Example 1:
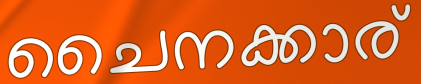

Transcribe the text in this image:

ചൈനക്കാര്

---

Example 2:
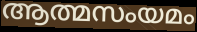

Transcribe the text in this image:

ആത്മസംയമം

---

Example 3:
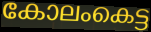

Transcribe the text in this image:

കോലംകെട്ട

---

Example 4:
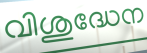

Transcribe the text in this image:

വിശുദ്ധേന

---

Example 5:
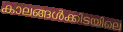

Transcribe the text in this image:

കാലങ്ങൾക്കിടയിലെ